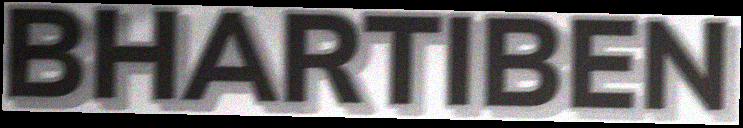
BHARTIBEN